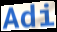
Adi